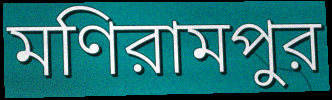
মণিরামপুর